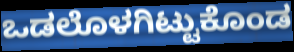
ಒಡಲೊಳಗಿಟ್ಟುಕೊಂಡ